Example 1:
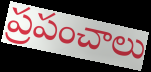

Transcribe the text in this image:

ప్రపంచాలు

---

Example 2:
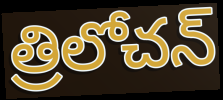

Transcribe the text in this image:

త్రిలోచన్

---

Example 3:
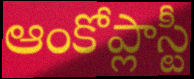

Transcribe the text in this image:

ఆంకోప్లాస్టీ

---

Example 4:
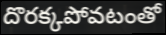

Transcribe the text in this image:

దొరక్కపోవటంతో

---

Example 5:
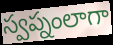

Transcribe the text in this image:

స్వప్నంలాగా